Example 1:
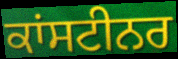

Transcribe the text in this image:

ਕਾਂਸਟੀਨਰ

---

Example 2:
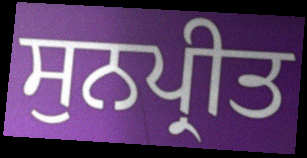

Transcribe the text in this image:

ਸੁਨਪ੍ਰੀਤ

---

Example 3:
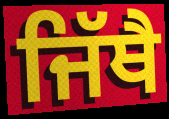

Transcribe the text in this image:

ਜਿੱਥੈ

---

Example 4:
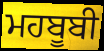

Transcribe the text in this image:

ਮਹਬੂਬੀ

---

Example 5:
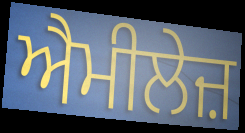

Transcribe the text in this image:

ਐਮੀਲੇਜ਼